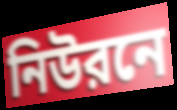
নিউরনে